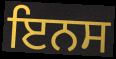
ਇਨਸ